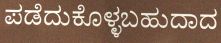
ಪಡೆದುಕೊಳ್ಳಬಹುದಾದ